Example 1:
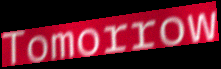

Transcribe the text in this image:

Tomorrow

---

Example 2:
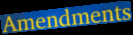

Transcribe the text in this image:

Amendments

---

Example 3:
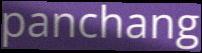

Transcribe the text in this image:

panchang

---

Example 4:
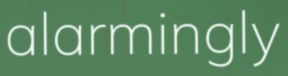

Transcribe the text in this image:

alarmingly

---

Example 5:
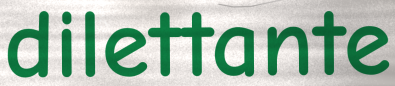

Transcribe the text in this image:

dilettante